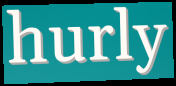
hurly